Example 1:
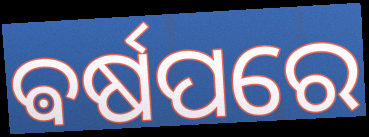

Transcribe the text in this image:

ଵର୍ଷପରେ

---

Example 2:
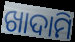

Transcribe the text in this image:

ଖାଦାମି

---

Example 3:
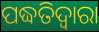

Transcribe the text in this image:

ପଦ୍ଧତିଦ୍ଵାରା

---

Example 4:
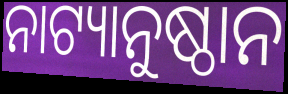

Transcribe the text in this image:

ନାଟ୍ୟାନୁଷ୍ଠାନ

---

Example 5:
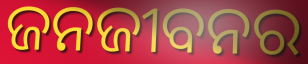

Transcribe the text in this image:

ଜନଜୀବନର